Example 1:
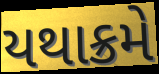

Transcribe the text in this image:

યથાક્રમે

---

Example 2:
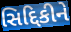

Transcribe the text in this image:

સિદ્દિકીને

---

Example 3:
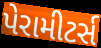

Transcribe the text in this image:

પેરામીટર્સ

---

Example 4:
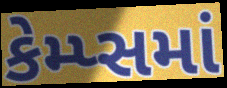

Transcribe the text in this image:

કેમ્પ્સમાં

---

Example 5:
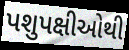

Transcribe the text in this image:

પશુપક્ષીઓથી